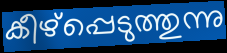
കീഴ്പ്പെടുത്തുന്നു